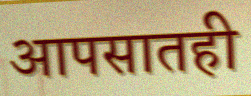
आपसातही